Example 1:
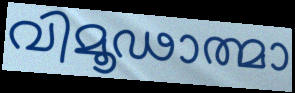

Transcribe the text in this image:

വിമൂഢാത്മാ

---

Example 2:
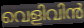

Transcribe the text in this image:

വെളിവിൻ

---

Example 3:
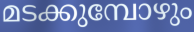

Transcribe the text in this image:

മടക്കുമ്പോഴും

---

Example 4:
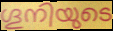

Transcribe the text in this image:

ഗൂനിയുടെ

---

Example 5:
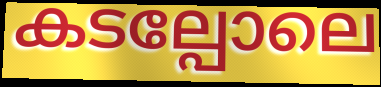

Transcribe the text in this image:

കടല്പോലെ